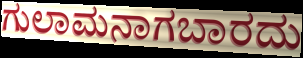
ಗುಲಾಮನಾಗಬಾರದು